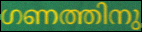
ഗണത്തിനു